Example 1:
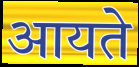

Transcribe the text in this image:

आयते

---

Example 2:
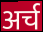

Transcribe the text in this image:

अर्च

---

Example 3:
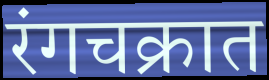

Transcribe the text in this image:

रंगचक्रात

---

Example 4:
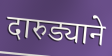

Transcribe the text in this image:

दारुड्याने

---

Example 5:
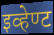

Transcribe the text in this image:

इव्हेण्ट